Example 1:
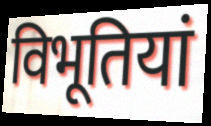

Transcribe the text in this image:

विभूतियां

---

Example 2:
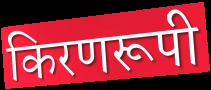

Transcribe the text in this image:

किरणरूपी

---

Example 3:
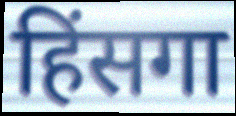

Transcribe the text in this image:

हिंसगा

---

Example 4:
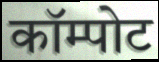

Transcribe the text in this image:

कॉम्पोट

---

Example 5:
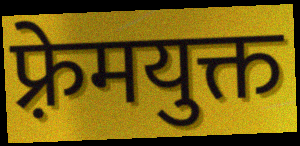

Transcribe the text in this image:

फ़्रेमयुक्त